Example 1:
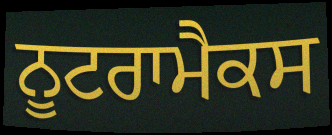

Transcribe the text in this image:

ਨੂਟਰਾਮੈਕਸ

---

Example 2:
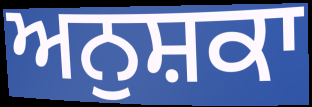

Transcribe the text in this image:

ਅਨੁਸ਼ਕਾ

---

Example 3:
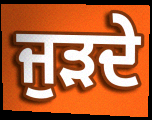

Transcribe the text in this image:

ਜੁੜਦੇ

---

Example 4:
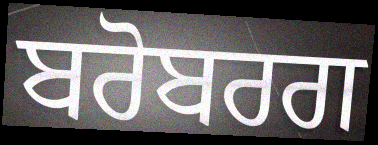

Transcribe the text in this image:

ਬਰੋਬਰਗ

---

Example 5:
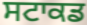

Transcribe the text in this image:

ਸਟਾਕਡ